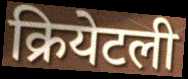
क्रियेटली